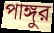
পাঙ্গুর